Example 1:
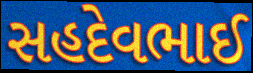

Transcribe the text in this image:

સહદેવભાઈ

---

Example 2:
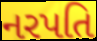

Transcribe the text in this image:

નરપતિ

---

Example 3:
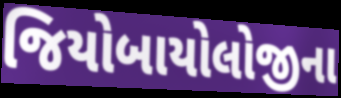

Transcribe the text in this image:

જિયોબાયોલોજીના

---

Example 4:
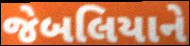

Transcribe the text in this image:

જેબલિયાને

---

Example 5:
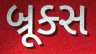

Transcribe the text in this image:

બ્રૂક્સ